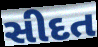
સીદત